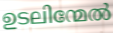
ഉടലിന്മേൽ